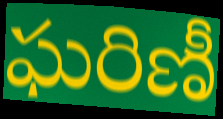
ఘరిణీ